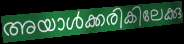
അയാൾക്കരികിലേക്കു